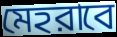
মেহরাবে